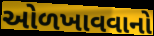
ઓળખાવવાનો